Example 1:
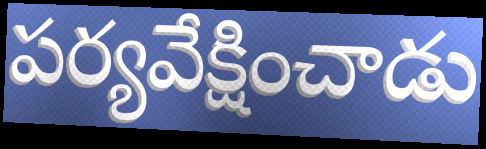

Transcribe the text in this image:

పర్యవేక్షించాడు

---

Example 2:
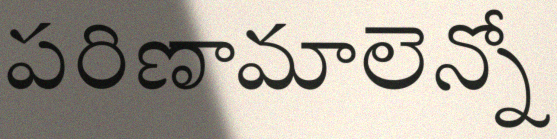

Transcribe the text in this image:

పరిణామాలెన్నో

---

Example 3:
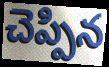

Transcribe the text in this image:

చెప్పిన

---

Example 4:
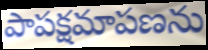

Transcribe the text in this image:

పాపక్షమాపణను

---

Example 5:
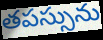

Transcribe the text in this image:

తపస్సును